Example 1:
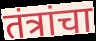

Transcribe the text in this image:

तंत्रांचा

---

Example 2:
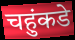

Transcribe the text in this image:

चहुंकडे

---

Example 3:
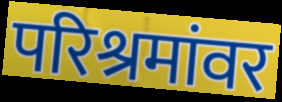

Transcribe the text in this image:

परिश्रमांवर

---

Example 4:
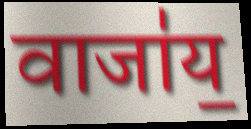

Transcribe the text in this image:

वाजा॑य॒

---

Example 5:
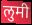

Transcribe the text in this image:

लुमी